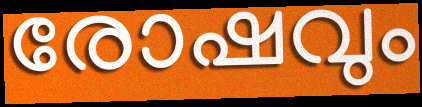
രോഷവും